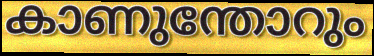
കാണുന്തോറും